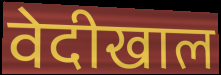
वेदीखाल